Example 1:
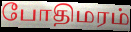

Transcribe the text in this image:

போதிமரம்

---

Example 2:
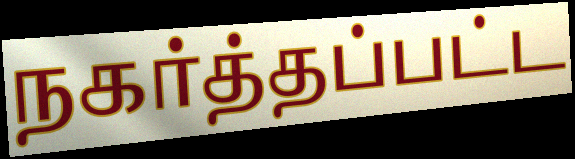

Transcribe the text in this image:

நகர்த்தப்பட்ட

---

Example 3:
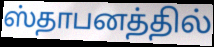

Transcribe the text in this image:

ஸ்தாபனத்தில்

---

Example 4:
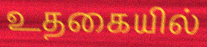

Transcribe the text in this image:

உதகையில்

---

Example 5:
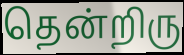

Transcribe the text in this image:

தென்றிரு